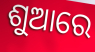
ଶୁଆରେ